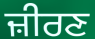
ਜ਼ੀਰਣ